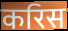
करिस